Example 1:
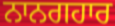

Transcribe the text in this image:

ਨਾਨਗਹਾਰ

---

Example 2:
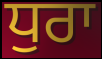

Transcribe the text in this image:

ਧੁਰਾ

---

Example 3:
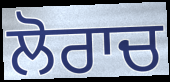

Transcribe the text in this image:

ਲੋਰਾਚ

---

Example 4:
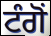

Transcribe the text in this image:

ਟੰਗੋਂ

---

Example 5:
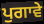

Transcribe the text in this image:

ਪੁਗਾਵੇ